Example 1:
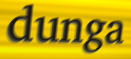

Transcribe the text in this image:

dunga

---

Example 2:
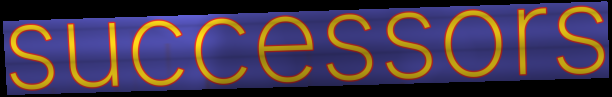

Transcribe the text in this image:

successors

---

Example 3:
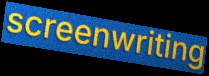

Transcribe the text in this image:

screenwriting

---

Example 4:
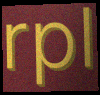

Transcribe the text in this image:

rpl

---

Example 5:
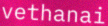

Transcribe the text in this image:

vethanai